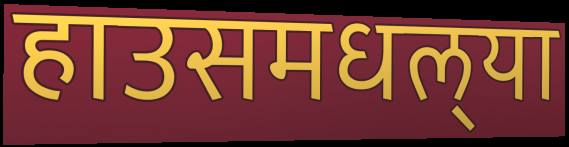
हाउसमधल्या